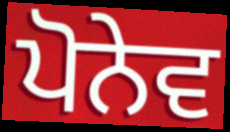
ਪੋਨੇਵ